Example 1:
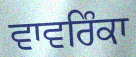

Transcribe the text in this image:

ਵਾਵਰਿੰਕਾ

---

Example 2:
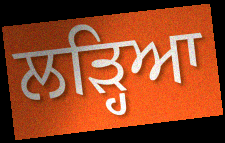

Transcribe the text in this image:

ਲੜ੍ਹਿਆ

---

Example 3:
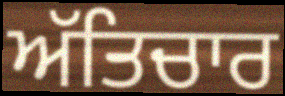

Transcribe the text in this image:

ਅੱਤਿਚਾਰ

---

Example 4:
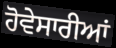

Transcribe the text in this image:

ਹੋਵੇਸਾਰੀਆਂ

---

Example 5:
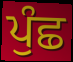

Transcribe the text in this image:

ਪੁੰਛ